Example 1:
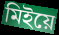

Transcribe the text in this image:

মিইয়ে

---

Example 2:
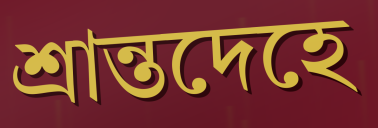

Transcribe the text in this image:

শ্রান্তদেহে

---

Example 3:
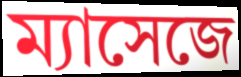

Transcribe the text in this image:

ম্যাসেজে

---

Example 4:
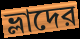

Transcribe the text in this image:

ভ্লাদের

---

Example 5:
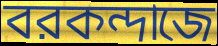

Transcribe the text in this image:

বরকন্দাজে